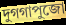
দুগগাপুজো